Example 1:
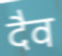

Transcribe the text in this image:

दैव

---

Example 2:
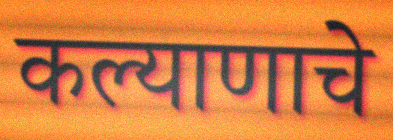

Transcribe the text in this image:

कल्याणाचे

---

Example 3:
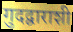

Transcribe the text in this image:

गुदद्वाराशी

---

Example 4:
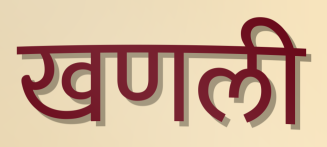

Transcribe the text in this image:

खणली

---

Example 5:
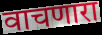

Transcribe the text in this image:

वाचणारा